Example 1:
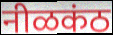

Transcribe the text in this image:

नीळकंठ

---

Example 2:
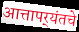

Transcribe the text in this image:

आत्तापर्यंतचे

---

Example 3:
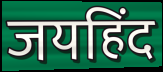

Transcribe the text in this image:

जयहिंद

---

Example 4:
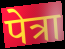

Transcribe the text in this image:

पेत्रा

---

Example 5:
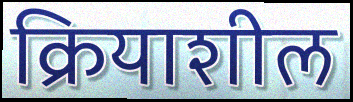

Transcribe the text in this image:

क्रियाशील